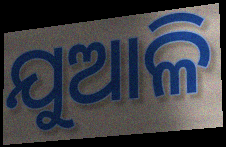
ଯୁଆଳି